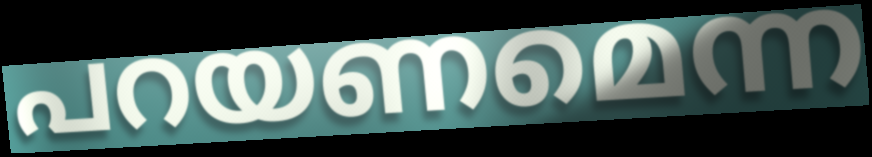
പറയണമെന്ന